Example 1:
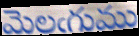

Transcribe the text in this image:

మెలఁగుము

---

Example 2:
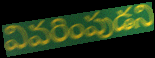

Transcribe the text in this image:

వివరింపుడని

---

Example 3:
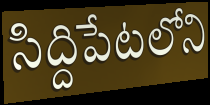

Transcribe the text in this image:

సిద్దిపేటలోని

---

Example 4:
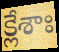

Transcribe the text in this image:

క్లేశాః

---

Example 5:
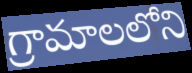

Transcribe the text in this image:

గ్రామాలలోని